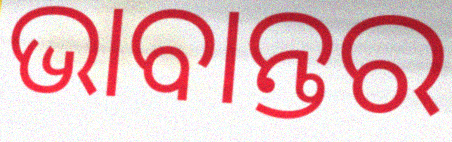
ଭାବାନ୍ତର